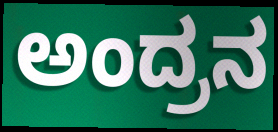
ಅಂದ್ರನ